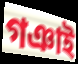
গঞাই